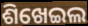
ଶିଖେଇଲ